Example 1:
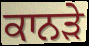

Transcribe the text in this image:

ਕਾਨੜੇ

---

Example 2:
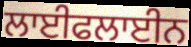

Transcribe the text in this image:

ਲਾਈਫਲਾਈਨ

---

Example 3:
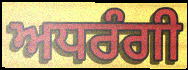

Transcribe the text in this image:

ਅਧਰੰਗੀ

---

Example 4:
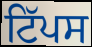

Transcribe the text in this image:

ਟਿੱਪਸ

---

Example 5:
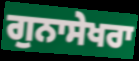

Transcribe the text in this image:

ਗੁਨਾਸੇਖਰਾ